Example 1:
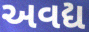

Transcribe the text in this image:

અવદ્ય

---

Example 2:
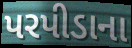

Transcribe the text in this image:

પરપીડાના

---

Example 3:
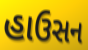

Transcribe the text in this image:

હાઉસન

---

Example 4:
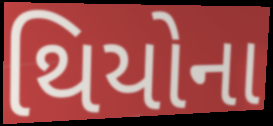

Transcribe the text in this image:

થિયોના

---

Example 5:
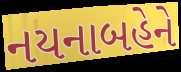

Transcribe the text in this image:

નયનાબહેને